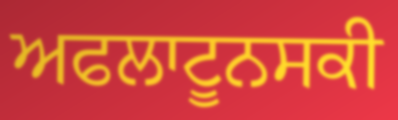
ਅਫਲਾਟੂਨਸਕੀ